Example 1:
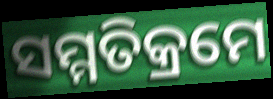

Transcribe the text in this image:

ସମ୍ମତିକ୍ରମେ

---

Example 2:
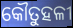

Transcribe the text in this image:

କୌତୁହଳୀ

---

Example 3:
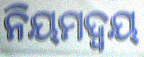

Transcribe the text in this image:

ନିୟମଦ୍ୱୟ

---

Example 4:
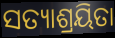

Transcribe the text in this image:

ସତ୍ୟାଶ୍ରୟିତା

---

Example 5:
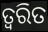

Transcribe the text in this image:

ତ୍ବରିତ